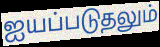
ஐயப்படுதலும்